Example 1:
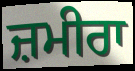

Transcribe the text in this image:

ਜ਼ਮੀਰਾ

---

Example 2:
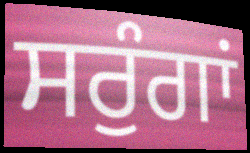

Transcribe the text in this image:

ਸਰੁੰਗਾਂ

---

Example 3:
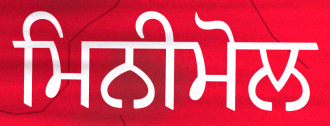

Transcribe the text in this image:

ਮਿਨੀਮੋਲ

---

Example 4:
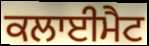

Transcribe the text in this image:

ਕਲਾਈਮੈਟ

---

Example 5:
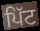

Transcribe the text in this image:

ਪਿੱਟ